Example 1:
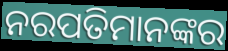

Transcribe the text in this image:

ନରପତିମାନଙ୍କର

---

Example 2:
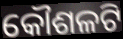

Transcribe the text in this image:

କୌଶଳଟି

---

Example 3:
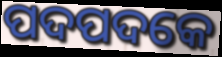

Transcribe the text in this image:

ପଦପଦକେ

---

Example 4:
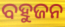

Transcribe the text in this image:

ବହୁଜନ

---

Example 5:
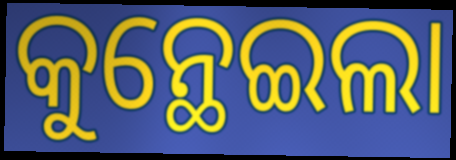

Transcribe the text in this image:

କୁନ୍ଥେଇଲା